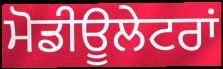
ਮੋਡੀਊਲੇਟਰਾਂ